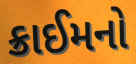
ક્રાઈમનો